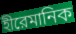
হীরেমানিক